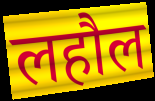
लहौल